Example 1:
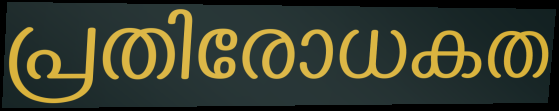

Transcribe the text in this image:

പ്രതിരോധകത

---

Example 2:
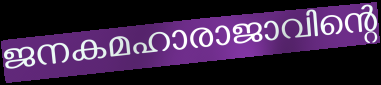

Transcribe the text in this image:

ജനകമഹാരാജാവിന്റെ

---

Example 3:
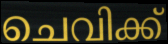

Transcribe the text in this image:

ചെവിക്ക്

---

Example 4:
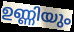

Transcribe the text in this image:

ഉണ്ണിയും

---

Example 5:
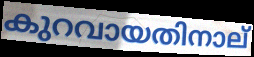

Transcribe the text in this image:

കുറവായതിനാല്